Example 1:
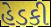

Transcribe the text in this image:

હેડકી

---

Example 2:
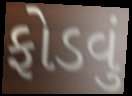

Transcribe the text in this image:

ફોડવું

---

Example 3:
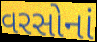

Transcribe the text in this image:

વરસોનાં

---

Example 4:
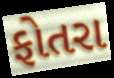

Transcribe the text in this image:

ફોતરા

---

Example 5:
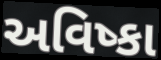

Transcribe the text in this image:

અવિષ્કા